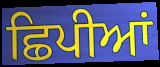
ਛਿਪੀਆਂ